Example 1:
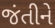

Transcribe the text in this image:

જંતીને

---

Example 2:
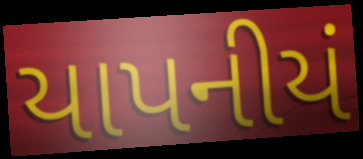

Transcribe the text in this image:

યાપનીયં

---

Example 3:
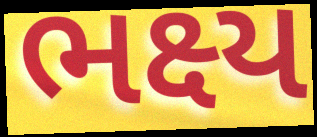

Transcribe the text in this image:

ભક્ષ્ય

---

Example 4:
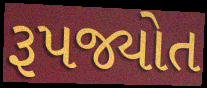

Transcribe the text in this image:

રૂપજ્યોત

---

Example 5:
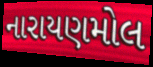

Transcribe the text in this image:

નારાયણમોલ